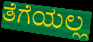
ತೆಗೆಯಲ್ಲ